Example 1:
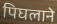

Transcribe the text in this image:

पिघलाने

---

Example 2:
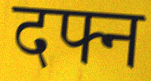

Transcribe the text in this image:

दफ्न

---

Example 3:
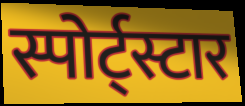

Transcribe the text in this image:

स्पोर्ट्स्टार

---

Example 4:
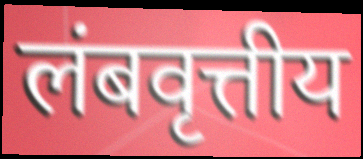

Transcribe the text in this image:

लंबवृत्तीय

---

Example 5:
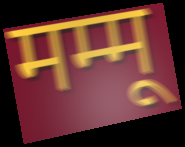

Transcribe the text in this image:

मम्मू